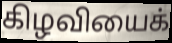
கிழவியைக்